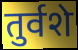
तुर्वशे